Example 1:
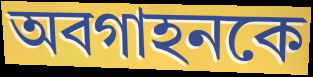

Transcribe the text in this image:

অবগাহনকে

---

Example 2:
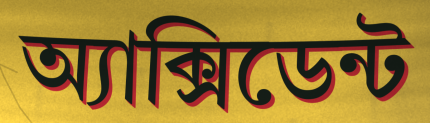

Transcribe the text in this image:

অ্যাক্সিডেন্ট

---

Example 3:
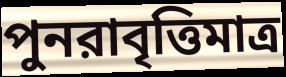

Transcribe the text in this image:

পুনরাবৃত্তিমাত্র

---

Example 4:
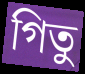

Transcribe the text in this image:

গিতু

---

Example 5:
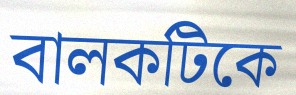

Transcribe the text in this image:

বালকটিকে